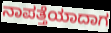
ನಾಪತ್ತೆಯಾದಾಗ